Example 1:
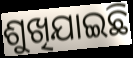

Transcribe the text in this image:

ଶୁଖିଯାଇଛି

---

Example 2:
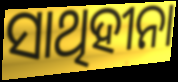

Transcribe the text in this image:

ସାଥିହୀନା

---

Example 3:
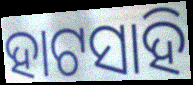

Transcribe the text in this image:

ହାଟସାହି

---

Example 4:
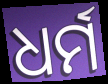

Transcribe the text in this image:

ଧର୍ମ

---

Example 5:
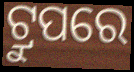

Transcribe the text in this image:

ଟ୍ରୁପରେ